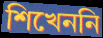
শিখেননি